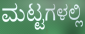
ಮಟ್ಟಗಳಲ್ಲಿ